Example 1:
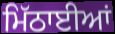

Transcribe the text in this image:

ਮਿੱਠਾਈਆਂ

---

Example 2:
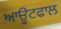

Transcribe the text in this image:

ਆਊਟਫਾਲ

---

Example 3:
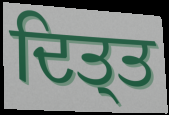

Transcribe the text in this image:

ਦਿਤ੍ਤ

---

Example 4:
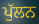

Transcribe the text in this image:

ਪੁੱਲਨ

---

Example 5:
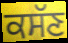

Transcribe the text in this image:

ਕਸੱਣ